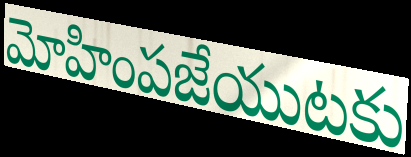
మోహింపజేయుటకు